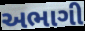
અભાગી